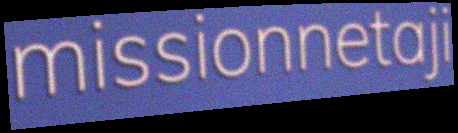
missionnetaji